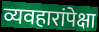
व्यवहारांपेक्षा